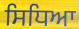
ਸਿਧਿਆ